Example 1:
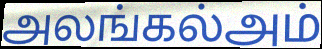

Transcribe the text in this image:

அலங்கல்அம்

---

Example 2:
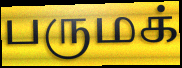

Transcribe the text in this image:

பருமக்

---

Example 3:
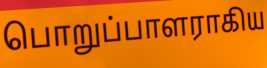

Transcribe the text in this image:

பொறுப்பாளராகிய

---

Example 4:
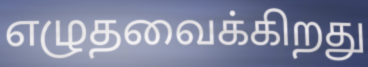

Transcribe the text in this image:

எழுதவைக்கிறது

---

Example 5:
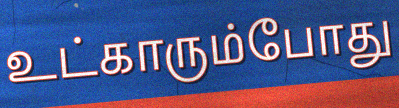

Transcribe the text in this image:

உட்காரும்போது